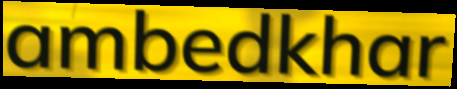
ambedkhar